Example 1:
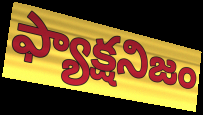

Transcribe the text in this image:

ఫ్యాక్షనిజం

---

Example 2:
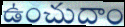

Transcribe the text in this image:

ఉంచుదాం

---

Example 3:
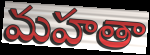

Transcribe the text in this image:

మహతా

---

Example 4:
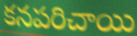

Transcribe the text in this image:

కనపరిచాయి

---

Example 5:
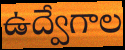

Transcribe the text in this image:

ఉద్వేగాల